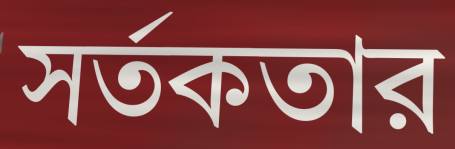
সর্তকতার